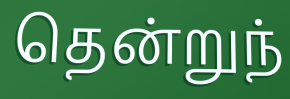
தென்றுந்